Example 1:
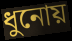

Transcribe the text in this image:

ধুনোয়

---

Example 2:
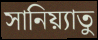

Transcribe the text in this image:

সানিয়্যাতু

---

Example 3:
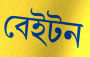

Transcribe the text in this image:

বেইটন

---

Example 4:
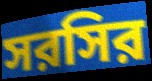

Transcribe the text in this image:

সরসির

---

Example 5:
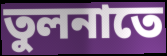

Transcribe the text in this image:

তুলনাতে